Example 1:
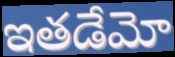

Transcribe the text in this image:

ఇతడేమో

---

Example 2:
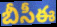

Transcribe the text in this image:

బీసీఈ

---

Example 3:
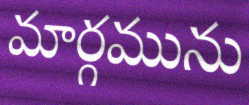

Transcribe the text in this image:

మార్గమును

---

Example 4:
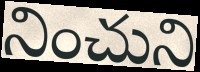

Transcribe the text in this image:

నించుని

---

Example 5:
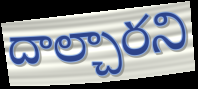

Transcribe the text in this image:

దాల్చారని